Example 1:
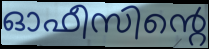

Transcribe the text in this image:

ഓഫീസിന്റെ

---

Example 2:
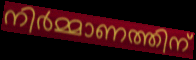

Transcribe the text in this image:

നിർമ്മാണത്തിന്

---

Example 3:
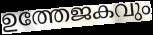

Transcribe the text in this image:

ഉത്തേജകവും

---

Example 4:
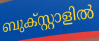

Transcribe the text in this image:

ബുക്സ്റ്റാളിൽ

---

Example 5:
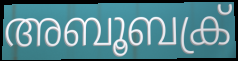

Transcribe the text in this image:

അബൂബക്ര്